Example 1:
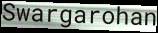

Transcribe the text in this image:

Swargarohan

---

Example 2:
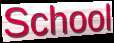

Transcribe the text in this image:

School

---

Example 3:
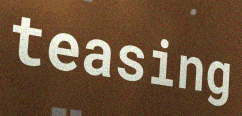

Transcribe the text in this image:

teasing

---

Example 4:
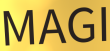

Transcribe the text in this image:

MAGI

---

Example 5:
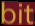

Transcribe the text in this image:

bit